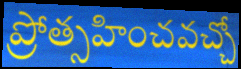
ప్రోత్సహించవచ్చో